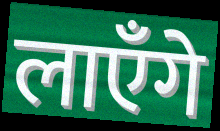
लाएँगे